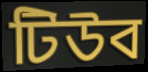
টিউব